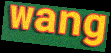
wang